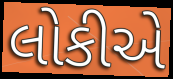
લોકીએ